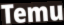
Temu